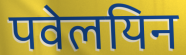
पवेलयिन